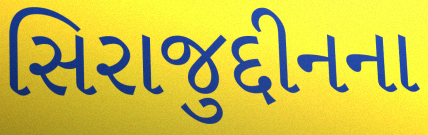
સિરાજુદ્દીનના